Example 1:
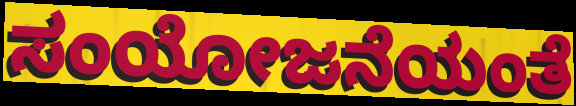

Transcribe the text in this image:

ಸಂಯೋಜನೆಯಂತೆ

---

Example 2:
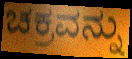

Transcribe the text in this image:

ಚಕ್ರವನ್ನು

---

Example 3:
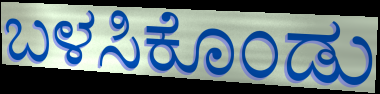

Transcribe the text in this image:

ಬಳಸಿಕೊಂಡು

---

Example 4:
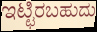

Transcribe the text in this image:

ಇಟ್ಟಿರಬಹುದು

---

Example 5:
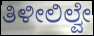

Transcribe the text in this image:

ತಿಳೀಲಿಲ್ವೇ